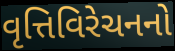
વૃત્તિવિરેચનનો